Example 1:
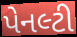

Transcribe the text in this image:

પેનલ્ટી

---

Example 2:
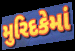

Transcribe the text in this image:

મુરિદકેમાં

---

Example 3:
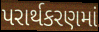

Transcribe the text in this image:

પરાર્થકરણમાં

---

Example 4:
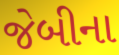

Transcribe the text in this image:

જેબીના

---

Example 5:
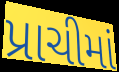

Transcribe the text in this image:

પ્રાચીમાં